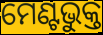
ମେଣ୍ଟଭୁକ୍ତ